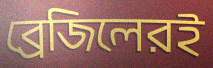
ব্রেজিলেরই